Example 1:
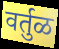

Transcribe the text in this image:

वर्तुळ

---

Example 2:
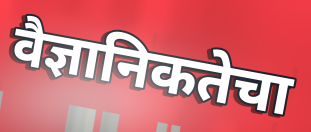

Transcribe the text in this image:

वैज्ञानिकतेचा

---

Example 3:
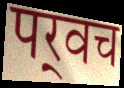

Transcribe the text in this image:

पर्वच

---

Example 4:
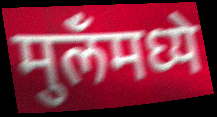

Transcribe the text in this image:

मुलँमध्ये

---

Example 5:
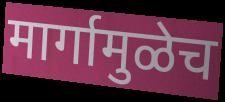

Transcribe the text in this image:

मार्गामुळेच